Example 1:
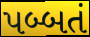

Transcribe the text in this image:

પબ્બતં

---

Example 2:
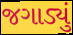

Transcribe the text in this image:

જગાડ્યું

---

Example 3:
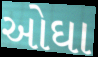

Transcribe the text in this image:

ઓઘા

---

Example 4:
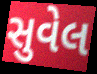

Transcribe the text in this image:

સુવેલ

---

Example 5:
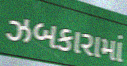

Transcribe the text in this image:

ઝબકારામાં